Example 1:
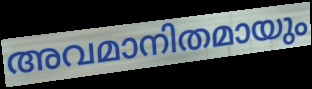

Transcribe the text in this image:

അവമാനിതമായും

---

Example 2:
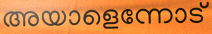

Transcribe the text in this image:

അയാളെന്നോട്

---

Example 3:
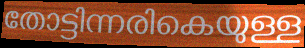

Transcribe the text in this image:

തോട്ടിന്നരികെയുള്ള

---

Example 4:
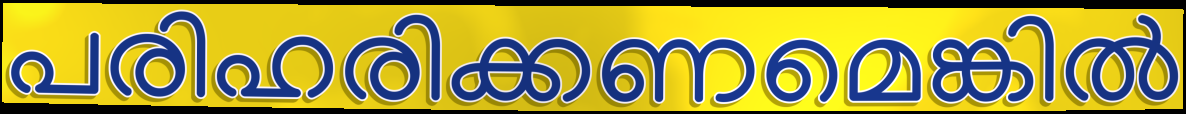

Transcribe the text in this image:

പരിഹരിക്കണമെങ്കിൽ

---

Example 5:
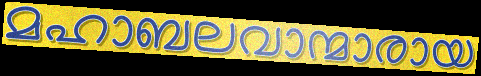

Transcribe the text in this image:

മഹാബലവാന്മാരായ